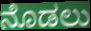
ನೊಡಲು